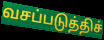
வசப்படுத்திச்